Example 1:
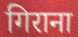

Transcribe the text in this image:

गिराना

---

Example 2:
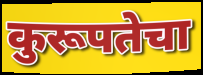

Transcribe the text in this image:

कुरूपतेचा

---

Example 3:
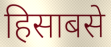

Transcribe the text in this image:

हिसाबसे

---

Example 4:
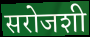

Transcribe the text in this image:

सरोजशी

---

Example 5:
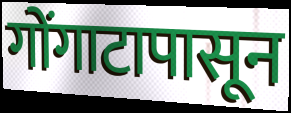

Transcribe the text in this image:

गोंगाटापासून